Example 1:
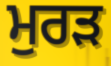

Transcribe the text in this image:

ਮੁਰੜ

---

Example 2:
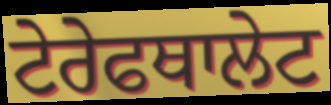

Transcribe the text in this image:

ਟੇਰੇਫਥਾਲੇਟ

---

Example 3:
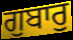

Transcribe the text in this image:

ਗੁਬਾਰੁ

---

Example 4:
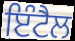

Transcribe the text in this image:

ਇੰਟੈਲ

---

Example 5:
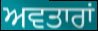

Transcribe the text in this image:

ਅਵਤਾਰਾਂ